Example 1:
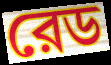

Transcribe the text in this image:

রেড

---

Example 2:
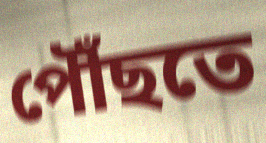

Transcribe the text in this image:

পৌঁছতে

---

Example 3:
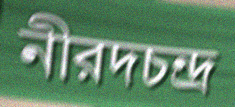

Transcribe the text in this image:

নীরদচন্দ্র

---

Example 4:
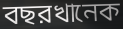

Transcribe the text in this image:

বছরখানেক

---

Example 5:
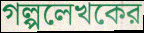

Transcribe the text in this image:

গল্পলেখকের